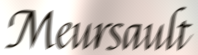
Meursault